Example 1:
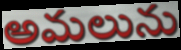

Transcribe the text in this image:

అమలును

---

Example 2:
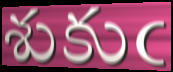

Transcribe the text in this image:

శుకుఁ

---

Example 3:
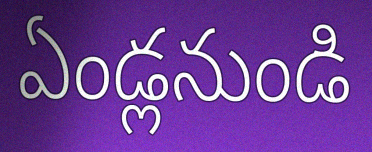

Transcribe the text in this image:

ఏండ్లనుండి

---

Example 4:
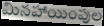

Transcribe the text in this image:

మినహాయింపుల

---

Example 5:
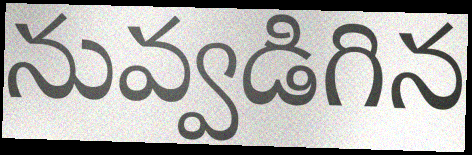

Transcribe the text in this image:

నువ్వడిగిన